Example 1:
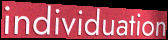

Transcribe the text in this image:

individuation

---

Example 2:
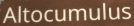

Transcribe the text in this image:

Altocumulus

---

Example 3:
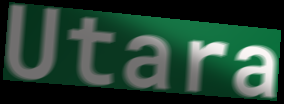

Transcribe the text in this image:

Utara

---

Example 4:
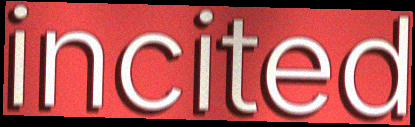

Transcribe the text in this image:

incited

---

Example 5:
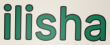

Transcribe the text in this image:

ilisha